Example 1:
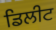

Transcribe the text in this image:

ਡਿਲੀਟ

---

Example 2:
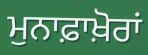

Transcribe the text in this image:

ਮੁਨਾਫ਼ਾਖ਼ੋਰਾਂ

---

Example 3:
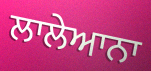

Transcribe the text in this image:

ਲਾਲੇਆਨਾ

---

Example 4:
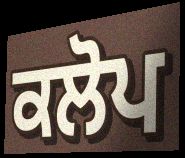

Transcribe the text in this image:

ਕਲੋਪ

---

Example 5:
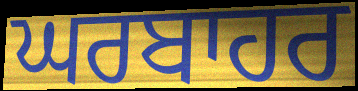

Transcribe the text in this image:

ਘਰਬਾਹਰ